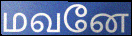
மவனே